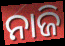
ନାଜି